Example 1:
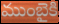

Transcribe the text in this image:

ముంబైకి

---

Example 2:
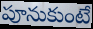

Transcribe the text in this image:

పూనుకుంటే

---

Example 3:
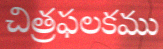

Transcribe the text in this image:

చిత్రఫలకము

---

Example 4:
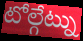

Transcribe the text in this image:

టోల్గేట్ను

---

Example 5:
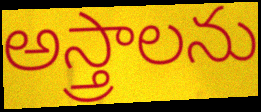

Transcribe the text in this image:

అస్త్రాలను